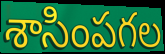
శాసింపగల